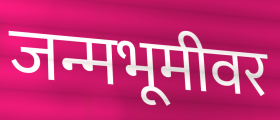
जन्मभूमीवर